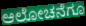
ಆಲೋಚನೆಗೂ